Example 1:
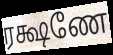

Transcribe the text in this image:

ரக்ஷணே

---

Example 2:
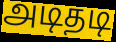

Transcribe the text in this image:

அடிதடி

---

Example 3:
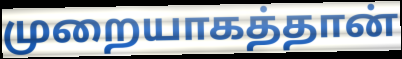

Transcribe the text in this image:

முறையாகத்தான்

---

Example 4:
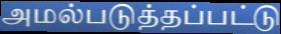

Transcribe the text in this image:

அமல்படுத்தப்பட்டு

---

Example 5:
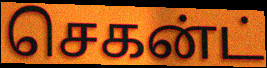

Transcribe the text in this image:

செகன்ட்